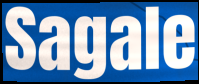
Sagale